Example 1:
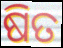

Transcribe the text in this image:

ଷିତ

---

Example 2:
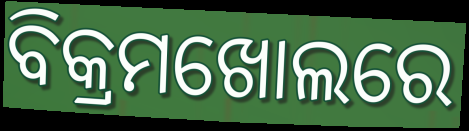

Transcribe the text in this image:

ବିକ୍ରମଖୋଲରେ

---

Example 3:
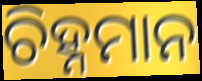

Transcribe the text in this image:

ଚିହ୍ନମାନ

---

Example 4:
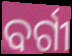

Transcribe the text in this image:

ବର୍ଗୀ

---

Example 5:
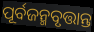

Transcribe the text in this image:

ପୂର୍ବଜନ୍ମବୃତ୍ତାନ୍ତ